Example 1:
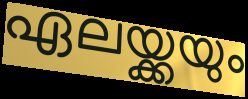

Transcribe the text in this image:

ഏലയ്ക്കയും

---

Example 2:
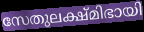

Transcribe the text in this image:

സേതുലക്ഷ്മിഭായി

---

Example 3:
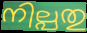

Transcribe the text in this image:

നില്പതു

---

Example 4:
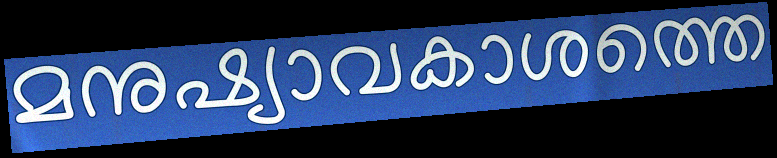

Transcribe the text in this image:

മനുഷ്യാവകാശത്തെ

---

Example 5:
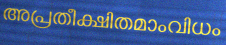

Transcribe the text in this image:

അപ്രതീക്ഷിതമാംവിധം